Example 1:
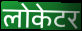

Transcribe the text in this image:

लोकेटर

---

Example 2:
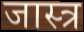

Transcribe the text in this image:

जास्त्र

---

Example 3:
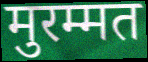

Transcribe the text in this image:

मुरम्मत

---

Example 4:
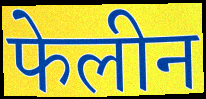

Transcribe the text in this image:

फेलीन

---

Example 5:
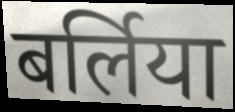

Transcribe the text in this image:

बर्लिया